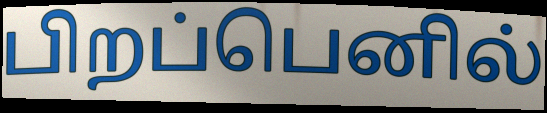
பிறப்பெனில்